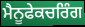
ਮੈਨੂਫੇਕਚਰਿੰਗ